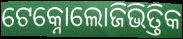
ଟେକ୍ନୋଲୋଜିଭିତ୍ତିକ